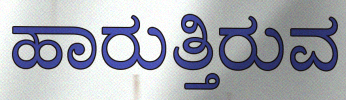
ಹಾರುತ್ತಿರುವ